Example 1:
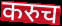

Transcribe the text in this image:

करुच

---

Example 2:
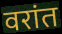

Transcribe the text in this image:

वरांत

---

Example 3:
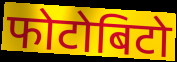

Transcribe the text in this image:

फोटोबिटो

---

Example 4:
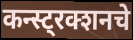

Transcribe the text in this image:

कन्स्ट्रक्शनचे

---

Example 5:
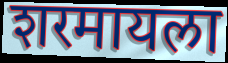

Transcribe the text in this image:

शरमायला